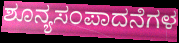
ಶೂನ್ಯಸಂಪಾದನೆಗಳ